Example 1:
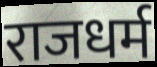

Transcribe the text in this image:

राजधर्म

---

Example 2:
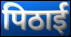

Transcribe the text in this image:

पिठाई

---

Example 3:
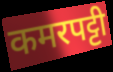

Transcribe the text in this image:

कमरपट्टी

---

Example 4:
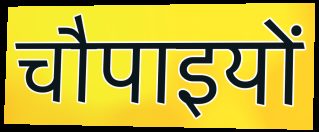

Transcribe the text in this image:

चौपाइयों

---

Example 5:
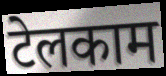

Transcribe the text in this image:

टेलकाम